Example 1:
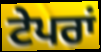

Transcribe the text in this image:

ਟੇਪਰਾਂ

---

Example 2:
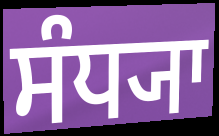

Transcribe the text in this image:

ਸੰਧ੍ਯਾ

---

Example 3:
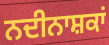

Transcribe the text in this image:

ਨਦੀਨਾਸ਼ਕਾਂ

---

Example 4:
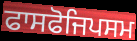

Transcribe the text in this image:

ਫਾਸਫੋਜਿਪਸਮ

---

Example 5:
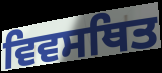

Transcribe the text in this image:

ਵਿਵਸਥਿਤ